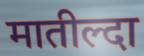
मातील्‍दा